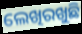
ଲେଖିରଖୁଛି